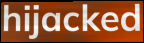
hijacked